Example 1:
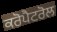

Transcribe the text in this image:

ਕਰੋਪੈਟਰੋਲ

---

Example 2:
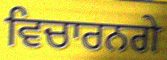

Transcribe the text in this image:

ਵਿਚਾਰਨਗੇ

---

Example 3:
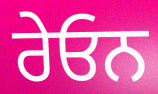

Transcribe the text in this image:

ਰੇਓਨ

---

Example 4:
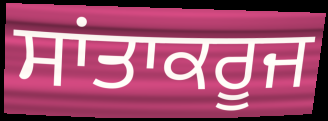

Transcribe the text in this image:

ਸਾਂਤਾਕਰੂਜ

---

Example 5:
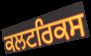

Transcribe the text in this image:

ਕਲਟਰਿਕਸ